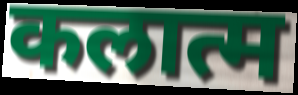
कलात्म